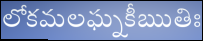
లోకమలఘ్నకీఋతిః